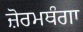
ਜ਼ੋਰਮਥੰਗਾ